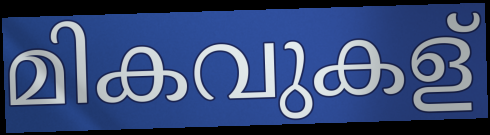
മികവുകള്